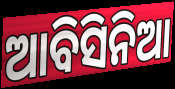
ଆବିସିନିଆ